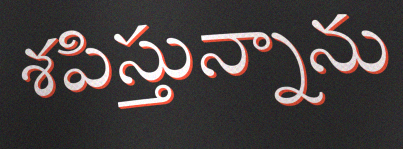
శపిస్తున్నాను